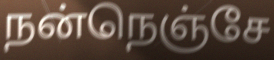
நன்நெஞ்சே